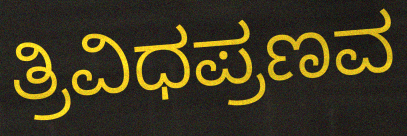
ತ್ರಿವಿಧಪ್ರಣವ